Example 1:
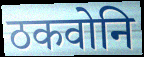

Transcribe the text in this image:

ठकवोनि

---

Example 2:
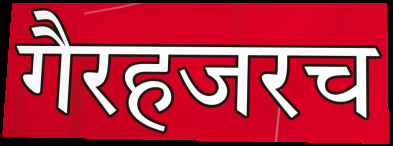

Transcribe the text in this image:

गैरहजरच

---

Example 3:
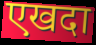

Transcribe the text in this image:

एखदा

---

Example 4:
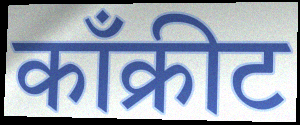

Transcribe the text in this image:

काँक्रीट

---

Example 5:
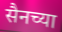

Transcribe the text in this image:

सैनच्या